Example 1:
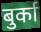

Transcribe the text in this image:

बुर्का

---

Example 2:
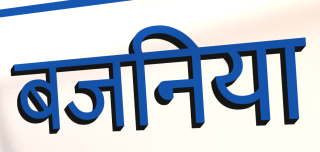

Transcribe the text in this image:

बजनिया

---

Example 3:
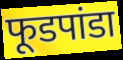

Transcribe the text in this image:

फूडपांडा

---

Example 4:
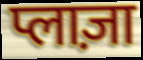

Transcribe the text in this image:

प्लाज़ा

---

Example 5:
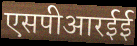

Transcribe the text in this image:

एसपीआरईई